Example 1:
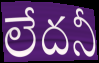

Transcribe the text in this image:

లేదనీ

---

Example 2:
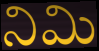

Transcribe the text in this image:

నిమి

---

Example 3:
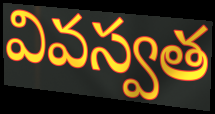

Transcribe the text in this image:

వివస్వత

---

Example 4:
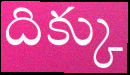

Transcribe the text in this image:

దిక్కు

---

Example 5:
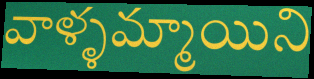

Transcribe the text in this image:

వాళ్ళమ్మాయిని